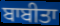
ਬਾਬੀਤਾ